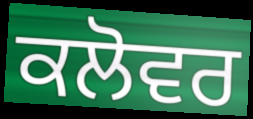
ਕਲੋਵਰ